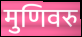
मुणिवरु